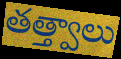
తత్త్వాలు